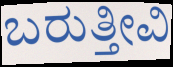
ಬರುತ್ತೀವಿ